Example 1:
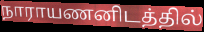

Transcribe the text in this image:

நாராயணனிடத்தில்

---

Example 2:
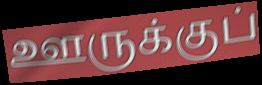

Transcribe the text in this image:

ஊருக்குப்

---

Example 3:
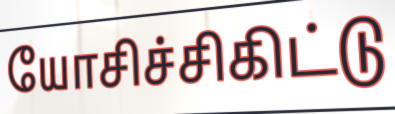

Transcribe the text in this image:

யோசிச்சிகிட்டு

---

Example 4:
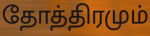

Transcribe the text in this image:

தோத்திரமும்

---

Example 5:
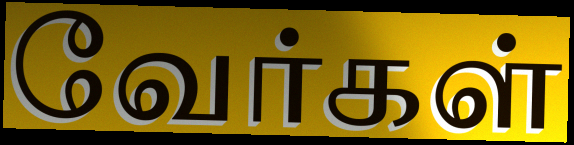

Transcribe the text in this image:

வேர்கள்